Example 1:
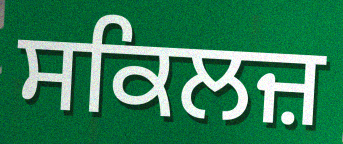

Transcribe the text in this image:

ਸਕਿਲਜ਼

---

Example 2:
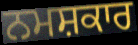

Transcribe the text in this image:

ਨਮਸ਼ਕਾਰ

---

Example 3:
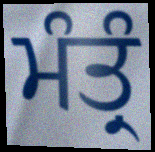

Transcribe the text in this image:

ਮੰਤ੍ਰੰ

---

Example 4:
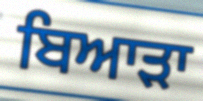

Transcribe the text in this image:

ਬਿਆੜਾ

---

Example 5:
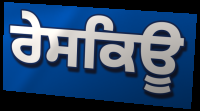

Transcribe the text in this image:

ਰੇਸਕਿਊ